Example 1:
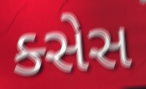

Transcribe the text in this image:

ક્સેસ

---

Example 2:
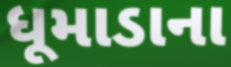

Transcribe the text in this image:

ધૂમાડાના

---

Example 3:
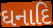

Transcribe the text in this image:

ઘનાદિ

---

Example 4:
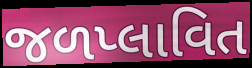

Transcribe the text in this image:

જળપ્લાવિત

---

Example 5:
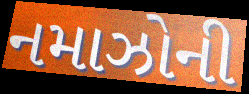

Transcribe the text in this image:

નમાઝોની